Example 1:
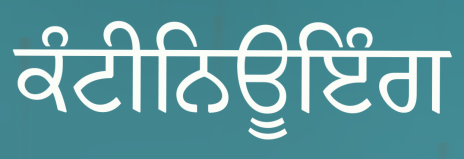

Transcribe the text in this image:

ਕੰਟੀਨਿਊਇੰਗ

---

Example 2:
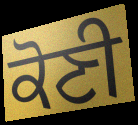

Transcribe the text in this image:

ਕੋਣੀ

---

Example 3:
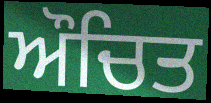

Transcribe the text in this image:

ਔਚਿਤ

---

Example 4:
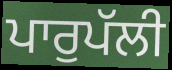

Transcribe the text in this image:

ਪਾਰੁਪੱਲੀ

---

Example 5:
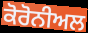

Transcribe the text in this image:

ਕੋਰੋਨੀਅਲ